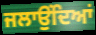
ਜਲਾਉਂਦਿਆਂ